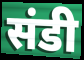
संडी